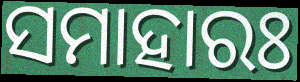
ସମାହାରଃ